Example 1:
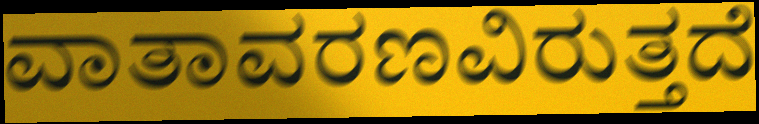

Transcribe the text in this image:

ವಾತಾವರಣವಿರುತ್ತದೆ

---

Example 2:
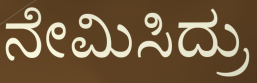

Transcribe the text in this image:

ನೇಮಿಸಿದ್ರು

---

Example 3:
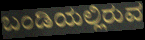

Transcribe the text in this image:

ಬಂಡಿಯಲ್ಲಿರುವ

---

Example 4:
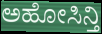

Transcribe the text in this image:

ಅಹೋಸಿನ್ತಿ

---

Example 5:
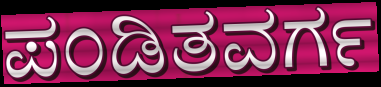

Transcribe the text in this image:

ಪಂಡಿತವರ್ಗ